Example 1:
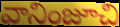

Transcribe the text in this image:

వానింజూచి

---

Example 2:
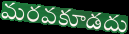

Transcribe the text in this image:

మరవకూడదు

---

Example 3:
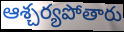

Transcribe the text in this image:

ఆశ్చర్యపోతారు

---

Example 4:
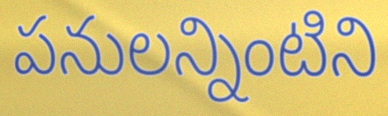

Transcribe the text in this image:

పనులన్నింటిని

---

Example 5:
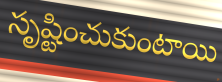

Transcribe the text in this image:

సృష్టించుకుంటాయి